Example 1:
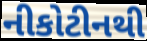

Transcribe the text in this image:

નીકોટીનથી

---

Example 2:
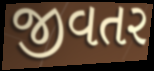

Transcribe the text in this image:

જીવતર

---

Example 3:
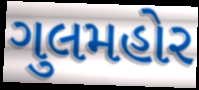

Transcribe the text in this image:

ગુલમહોર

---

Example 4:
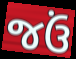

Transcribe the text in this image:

જઉં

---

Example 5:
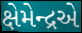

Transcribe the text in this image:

ક્ષેમેન્દ્રએ